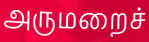
அருமறைச்